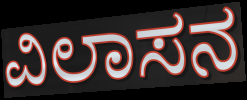
ವಿಲಾಸನ